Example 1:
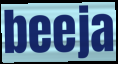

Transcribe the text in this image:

beeja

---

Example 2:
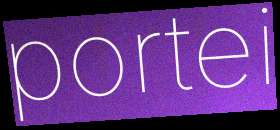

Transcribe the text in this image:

portei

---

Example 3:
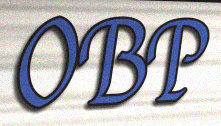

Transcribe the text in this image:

OBP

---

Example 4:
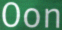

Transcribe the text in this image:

Oon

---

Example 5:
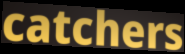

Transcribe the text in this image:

catchers